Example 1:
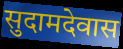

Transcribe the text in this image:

सुदामदेवास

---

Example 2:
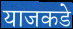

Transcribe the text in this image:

याजकडे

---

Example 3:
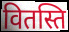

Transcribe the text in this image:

वितस्ति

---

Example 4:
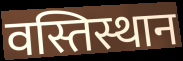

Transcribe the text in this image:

वस्तिस्थान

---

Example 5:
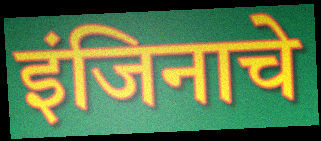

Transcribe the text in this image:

इंजिनाचे